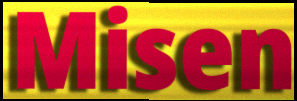
Misen